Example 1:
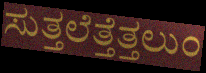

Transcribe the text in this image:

ಸುತ್ತಲೆತ್ತೆತ್ತಲುಂ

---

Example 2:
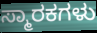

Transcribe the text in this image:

ಸ್ಮಾರಕಗಳು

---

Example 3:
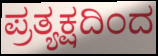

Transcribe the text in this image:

ಪ್ರತ್ಯಕ್ಷದಿಂದ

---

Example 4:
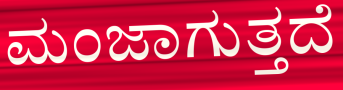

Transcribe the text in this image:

ಮಂಜಾಗುತ್ತದೆ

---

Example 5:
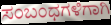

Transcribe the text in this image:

ಸಂಬಂಧಗಳಿಗಾಗಿ